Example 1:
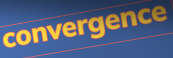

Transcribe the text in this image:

convergence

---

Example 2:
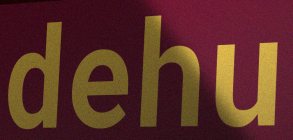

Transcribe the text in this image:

dehu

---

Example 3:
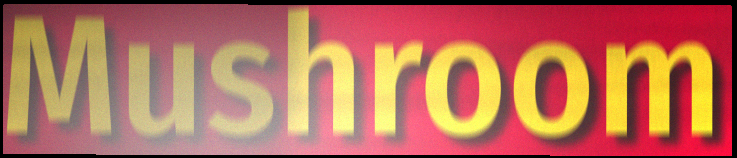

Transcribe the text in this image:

Mushroom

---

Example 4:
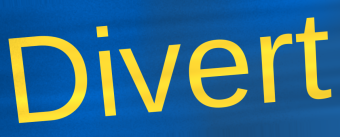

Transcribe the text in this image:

Divert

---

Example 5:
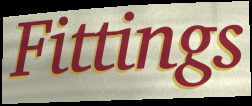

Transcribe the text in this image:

Fittings